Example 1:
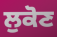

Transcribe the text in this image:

ਲੁਕੋਣ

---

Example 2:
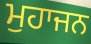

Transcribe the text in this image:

ਮੁਹਾਜਨ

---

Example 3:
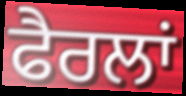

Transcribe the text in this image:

ਫੈਰਲਾਂ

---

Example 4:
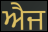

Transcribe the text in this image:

ਐਜ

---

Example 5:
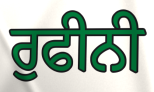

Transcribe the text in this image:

ਰੁਫੀਨੀ